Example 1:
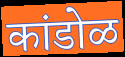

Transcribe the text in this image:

कांडोळ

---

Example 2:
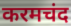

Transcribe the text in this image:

करमचंद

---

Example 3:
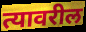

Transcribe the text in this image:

त्यावरील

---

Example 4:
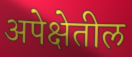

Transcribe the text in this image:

अपेक्षेतील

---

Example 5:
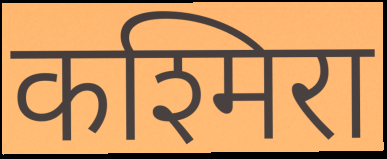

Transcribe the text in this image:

कश्मिरा